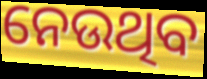
ନେଉଥିବ